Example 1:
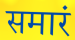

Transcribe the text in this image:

समारं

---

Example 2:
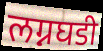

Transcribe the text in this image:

लग्नघडी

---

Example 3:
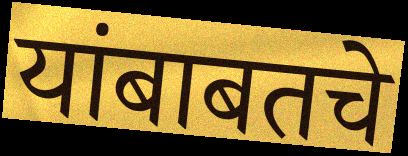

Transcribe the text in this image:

यांबाबतचे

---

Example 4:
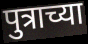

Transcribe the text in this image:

पुत्राच्या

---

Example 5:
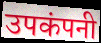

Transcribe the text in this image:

उपकंपनी